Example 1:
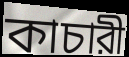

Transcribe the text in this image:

কাচারী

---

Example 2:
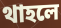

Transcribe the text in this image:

থাহলে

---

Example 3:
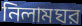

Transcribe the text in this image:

নিলামঘর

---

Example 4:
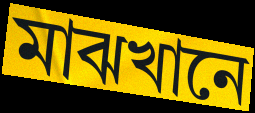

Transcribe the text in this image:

মাঝখানে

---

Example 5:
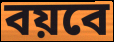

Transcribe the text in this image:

বয়বে